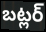
బట్లర్